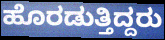
ಹೊರಡುತ್ತಿದ್ದರು